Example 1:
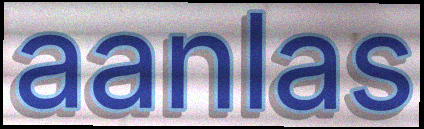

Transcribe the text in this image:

aanlas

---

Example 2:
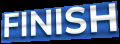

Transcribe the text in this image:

FINISH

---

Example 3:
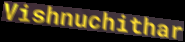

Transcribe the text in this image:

Vishnuchithar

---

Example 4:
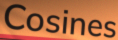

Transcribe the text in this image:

Cosines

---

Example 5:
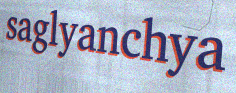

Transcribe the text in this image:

saglyanchya